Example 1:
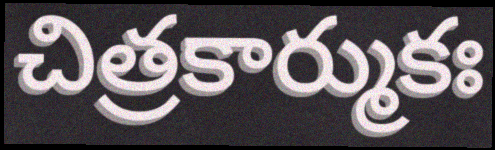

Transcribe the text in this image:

చిత్రకార్ముకః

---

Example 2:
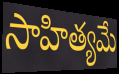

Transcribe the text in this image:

సాహిత్యమే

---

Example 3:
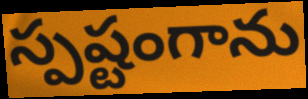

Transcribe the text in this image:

స్పష్టంగాను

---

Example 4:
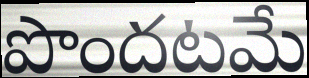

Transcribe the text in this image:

పొందటమే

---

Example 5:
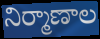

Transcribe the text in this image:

నిర్మాణాల